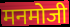
मनमोजी